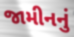
જામીનનું